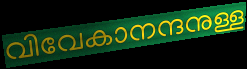
വിവേകാനന്ദനുള്ള